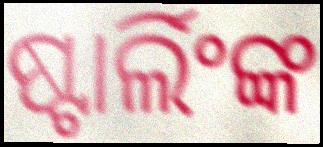
ଷ୍ଟାର୍ଲିଂଙ୍କ